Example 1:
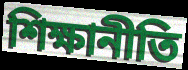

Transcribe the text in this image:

শিক্ষানীতি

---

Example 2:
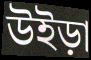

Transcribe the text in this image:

উইড়া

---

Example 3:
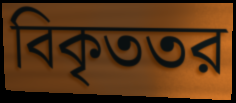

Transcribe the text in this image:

বিকৃততর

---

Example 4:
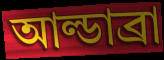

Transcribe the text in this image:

আল্ডাব্রা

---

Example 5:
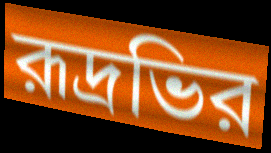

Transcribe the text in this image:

রূদ্রভির